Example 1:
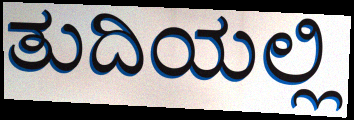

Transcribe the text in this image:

ತುದಿಯಲ್ಲಿ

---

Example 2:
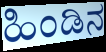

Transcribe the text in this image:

ಹಿಂಡಿನ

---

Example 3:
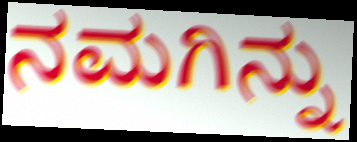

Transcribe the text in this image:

ನಮಗಿನ್ನು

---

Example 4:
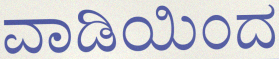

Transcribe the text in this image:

ವಾಡಿಯಿಂದ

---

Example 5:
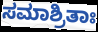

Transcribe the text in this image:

ಸಮಾಶ್ರಿತಾಃ